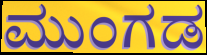
ಮುಂಗಡ